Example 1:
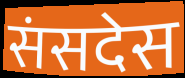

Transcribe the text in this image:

संसदेस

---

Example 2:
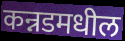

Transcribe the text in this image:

कन्नडमधील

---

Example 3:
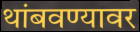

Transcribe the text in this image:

थांबवण्यावर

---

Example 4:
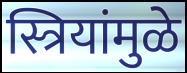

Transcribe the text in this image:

स्त्रियांमुळे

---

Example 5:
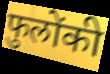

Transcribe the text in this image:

फुलोंकी